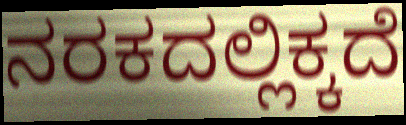
ನರಕದಲ್ಲಿಕ್ಕದೆ